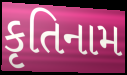
કૃતિનામ